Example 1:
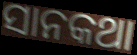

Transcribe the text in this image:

ସାନକଥା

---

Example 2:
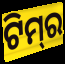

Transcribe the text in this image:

ଟିମ୍‌ର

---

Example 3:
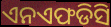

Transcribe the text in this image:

ଏନଏଫଡିସି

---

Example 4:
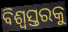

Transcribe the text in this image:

ବିଶ୍ୱସ୍ତରକୁ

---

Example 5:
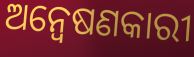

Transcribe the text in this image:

ଅନ୍ୱେଷଣକାରୀ